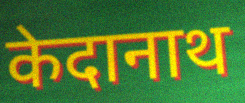
केदानाथ